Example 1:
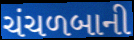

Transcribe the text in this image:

ચંચળબાની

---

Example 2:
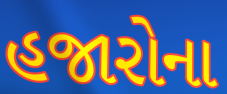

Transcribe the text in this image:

હજારોના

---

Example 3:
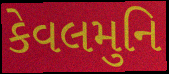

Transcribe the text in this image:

કેવલમુનિ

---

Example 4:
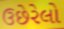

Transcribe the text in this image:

ઉછેરેલો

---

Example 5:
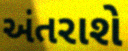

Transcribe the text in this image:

અંતરાશે